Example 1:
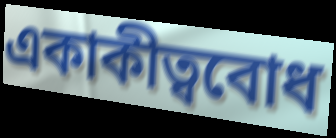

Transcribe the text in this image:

একাকীত্ববোধ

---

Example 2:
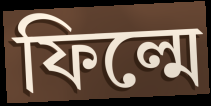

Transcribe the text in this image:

ফিল্মে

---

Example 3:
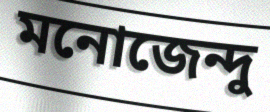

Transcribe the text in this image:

মনোজেন্দু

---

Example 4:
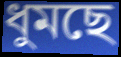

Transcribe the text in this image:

ধুমছে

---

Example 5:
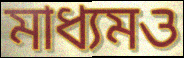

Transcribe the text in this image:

মাধ্যমও